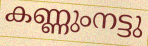
കണ്ണുംനട്ടു